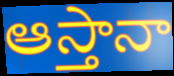
ఆస్తానా